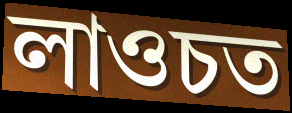
লাওচত